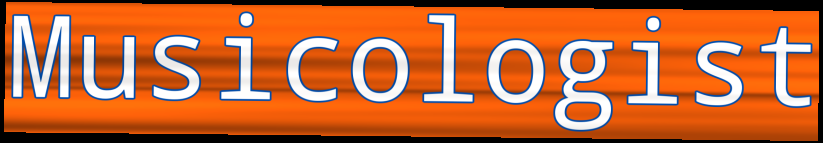
Musicologist